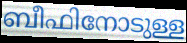
ബീഫിനോടുള്ള